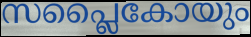
സപ്ലൈകോയും